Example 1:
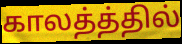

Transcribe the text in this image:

காலத்த்தில்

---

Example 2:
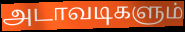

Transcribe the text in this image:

அடாவடிகளும்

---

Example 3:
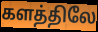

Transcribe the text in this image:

களத்திலே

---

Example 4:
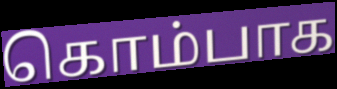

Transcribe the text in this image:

கொம்பாக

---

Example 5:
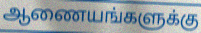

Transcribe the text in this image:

ஆணையங்களுக்கு